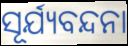
ସୂର୍ଯ୍ୟବନ୍ଦନା